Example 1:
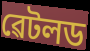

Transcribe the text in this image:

ৱেটলড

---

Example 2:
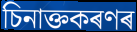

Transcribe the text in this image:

চিনাক্তকৰণৰ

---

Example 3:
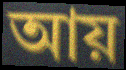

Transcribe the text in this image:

আয়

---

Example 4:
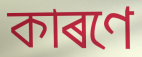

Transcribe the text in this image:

কাৰণে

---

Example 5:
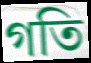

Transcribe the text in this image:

গতি